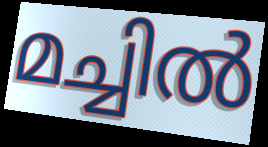
മച്ചിൽ